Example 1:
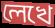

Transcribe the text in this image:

লেখে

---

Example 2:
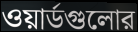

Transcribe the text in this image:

ওয়ার্ডগুলোর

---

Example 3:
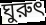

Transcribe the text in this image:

ঘুরুৎ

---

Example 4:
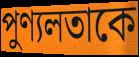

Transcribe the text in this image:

পুণ্যলতাকে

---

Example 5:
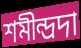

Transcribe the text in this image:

শমীন্দ্রদা